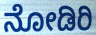
ನೋಡಿರಿ